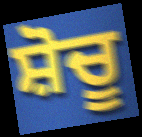
ਸ਼ੋਚੂ